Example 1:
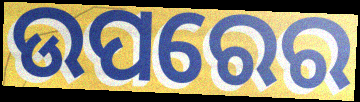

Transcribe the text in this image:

ଉପରେର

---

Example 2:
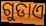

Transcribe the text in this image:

ଗୁଡାଏ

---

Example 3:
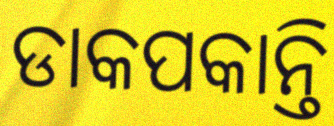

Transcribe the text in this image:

ଡାକପକାନ୍ତି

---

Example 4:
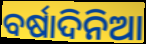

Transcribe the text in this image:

ବର୍ଷାଦିନିଆ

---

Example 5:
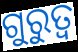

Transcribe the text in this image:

ଗୁରୁତ୍ୱ